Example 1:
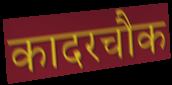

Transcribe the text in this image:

कादरचौक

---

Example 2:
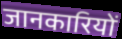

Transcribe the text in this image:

जानकारियों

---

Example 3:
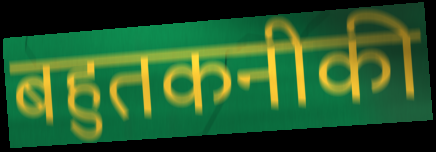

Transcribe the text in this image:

बहुतकनीकी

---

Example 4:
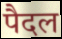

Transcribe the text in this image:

पैदल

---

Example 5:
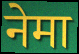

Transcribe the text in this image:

नेमा